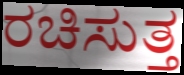
ರಚಿಸುತ್ತ